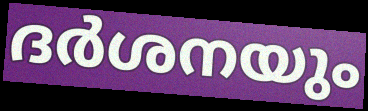
ദർശനയും